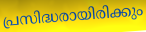
പ്രസിദ്ധരായിരിക്കും